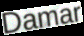
Damar